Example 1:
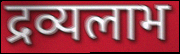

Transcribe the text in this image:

द्रव्यलाभ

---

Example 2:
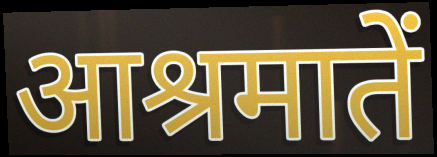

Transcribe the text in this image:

आश्रमातें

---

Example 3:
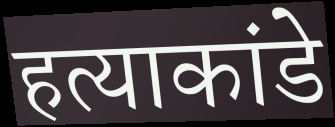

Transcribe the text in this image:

हत्याकांडे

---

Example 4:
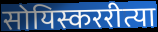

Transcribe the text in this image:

सोयिस्कररीत्या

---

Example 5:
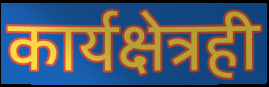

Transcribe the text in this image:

कार्यक्षेत्रही